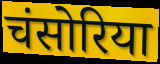
चंसोरिया